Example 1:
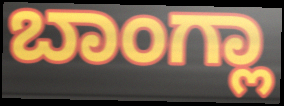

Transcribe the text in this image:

ಬಾಂಗ್ಲಾ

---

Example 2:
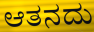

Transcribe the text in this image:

ಆತನದು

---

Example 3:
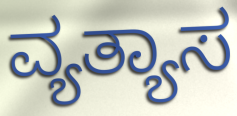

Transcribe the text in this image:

ವ್ಯತ್ಯಾಸ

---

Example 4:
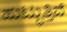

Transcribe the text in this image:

ಹುಟ್ಟುತ್ತಿವೆ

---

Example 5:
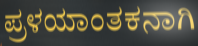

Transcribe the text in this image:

ಪ್ರಳಯಾಂತಕನಾಗಿ